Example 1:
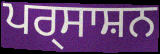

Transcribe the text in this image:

ਪਰ੍ਸਾਸ਼ਨ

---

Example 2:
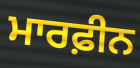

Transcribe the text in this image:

ਮਾਰਫ਼ੀਨ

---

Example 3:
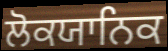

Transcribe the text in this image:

ਲੋਕਯਾਨਿਕ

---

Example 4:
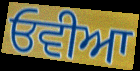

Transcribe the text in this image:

ਓਵੀਆ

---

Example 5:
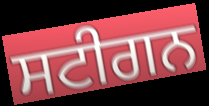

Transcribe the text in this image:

ਸਟੀਗਨ